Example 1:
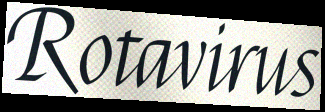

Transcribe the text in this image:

Rotavirus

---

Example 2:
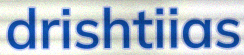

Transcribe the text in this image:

drishtiias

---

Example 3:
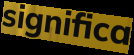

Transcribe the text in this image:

significa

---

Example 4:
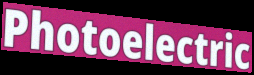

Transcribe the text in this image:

Photoelectric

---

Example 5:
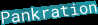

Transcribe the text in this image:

Pankration